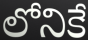
లోనికే